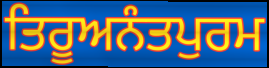
ਤਿਰੂਅਨੰਤਪੁਰਮ